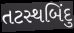
તટસ્થબિંદુ